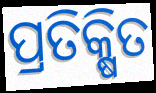
ପ୍ରତିକ୍ଷିତ